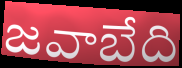
జవాబేది